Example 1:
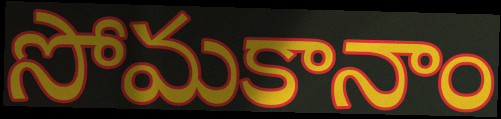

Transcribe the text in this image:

సోమకానాం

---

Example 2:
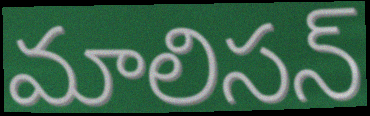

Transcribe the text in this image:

మాలిసన్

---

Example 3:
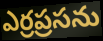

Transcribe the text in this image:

ఎర్రప్రసను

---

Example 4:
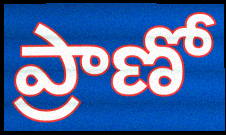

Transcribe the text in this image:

ప్రాణో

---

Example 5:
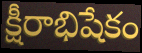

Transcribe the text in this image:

క్షీరాభిషేకం